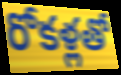
రోకళ్లతో